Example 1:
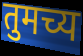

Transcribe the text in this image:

तुमच्य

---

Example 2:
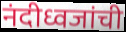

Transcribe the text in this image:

नंदीध्वजांची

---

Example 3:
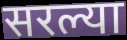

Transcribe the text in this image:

सरल्या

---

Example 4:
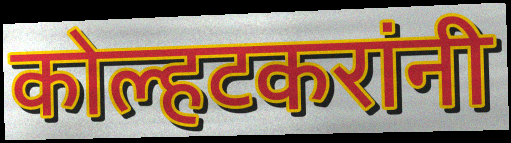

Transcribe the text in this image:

कोल्हटकरांनी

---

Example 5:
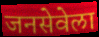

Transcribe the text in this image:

जनसेवेला